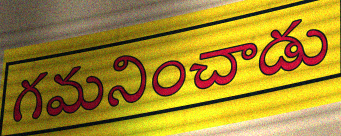
గమనించాడు